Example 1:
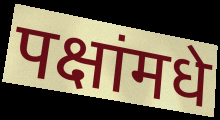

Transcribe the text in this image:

पक्षांमधे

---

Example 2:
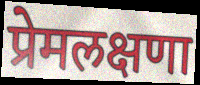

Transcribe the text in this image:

प्रेमलक्षणा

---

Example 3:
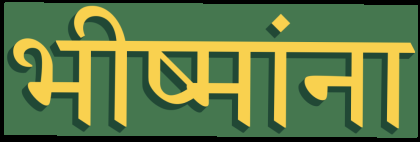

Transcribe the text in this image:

भीष्मांना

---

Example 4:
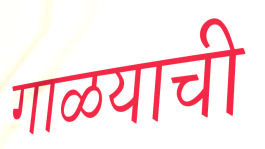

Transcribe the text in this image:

गाळयाची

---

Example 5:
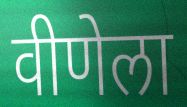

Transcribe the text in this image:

वीणेला